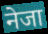
नेजा